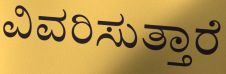
ವಿವರಿಸುತ್ತಾರೆ